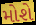
મોશે